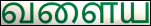
வளைய